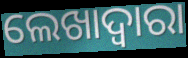
ଲେଖାଦ୍ୱାରା